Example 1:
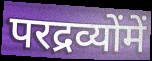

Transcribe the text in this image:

परद्रव्योंमें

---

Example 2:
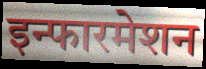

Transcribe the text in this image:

इन्फारमेशन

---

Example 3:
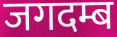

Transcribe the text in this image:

जगदम्ब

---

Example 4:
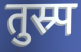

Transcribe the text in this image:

तुस्र्प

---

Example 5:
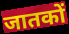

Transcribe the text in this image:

जातकों